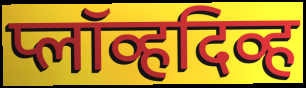
प्लॉव्हदिव्ह